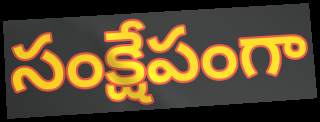
సంక్షేపంగా